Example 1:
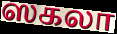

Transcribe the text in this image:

ஸகலா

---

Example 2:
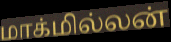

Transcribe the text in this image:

மாக்மில்லன்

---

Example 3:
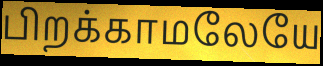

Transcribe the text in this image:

பிறக்காமலேயே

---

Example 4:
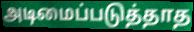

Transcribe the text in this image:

அடிமைப்படுத்தாத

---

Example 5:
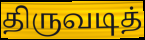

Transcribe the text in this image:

திருவடித்